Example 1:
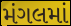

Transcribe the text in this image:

મંગલમાં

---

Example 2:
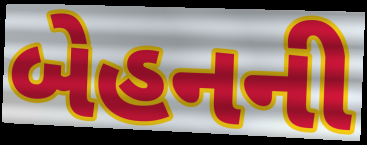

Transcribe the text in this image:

બેહનની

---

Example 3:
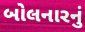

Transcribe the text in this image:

બોલનારનું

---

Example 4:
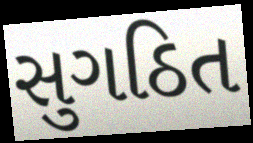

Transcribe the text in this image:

સુગઠિત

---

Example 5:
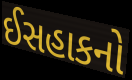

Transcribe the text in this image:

ઈસહાકનો